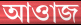
আওাজ